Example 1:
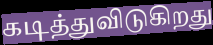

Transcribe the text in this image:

கடித்துவிடுகிறது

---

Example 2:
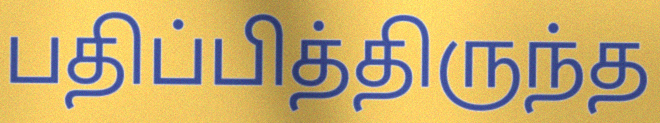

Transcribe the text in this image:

பதிப்பித்திருந்த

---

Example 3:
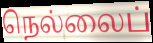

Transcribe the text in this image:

நெல்லைப்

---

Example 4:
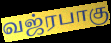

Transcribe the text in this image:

வஜ்ரபாகு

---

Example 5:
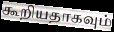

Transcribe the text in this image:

கூறியதாகவும்